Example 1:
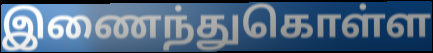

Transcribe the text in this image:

இணைந்துகொள்ள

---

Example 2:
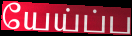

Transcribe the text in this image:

யேய்ப்ப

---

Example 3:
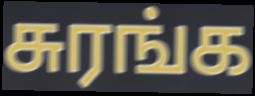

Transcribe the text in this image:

சுரங்க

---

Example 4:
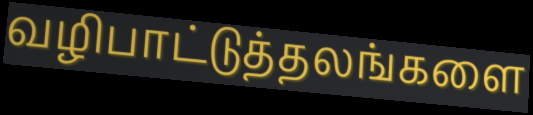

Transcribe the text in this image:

வழிபாட்டுத்தலங்களை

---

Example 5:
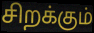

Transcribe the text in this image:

சிறக்கும்